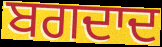
ਬਗਦਾਦ